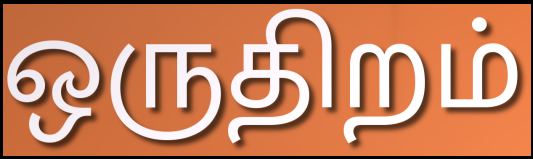
ஒருதிறம்